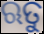
ଋତୁ